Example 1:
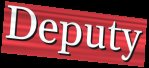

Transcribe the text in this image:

Deputy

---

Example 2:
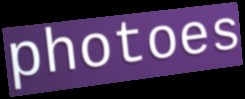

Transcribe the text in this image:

photoes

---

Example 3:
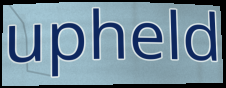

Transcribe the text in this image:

upheld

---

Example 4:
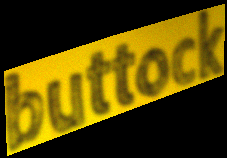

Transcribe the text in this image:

buttock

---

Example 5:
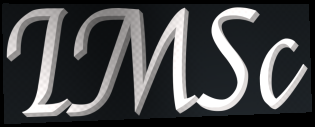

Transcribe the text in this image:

IMSc